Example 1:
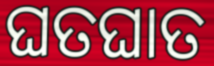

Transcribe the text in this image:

ଘତଘାତ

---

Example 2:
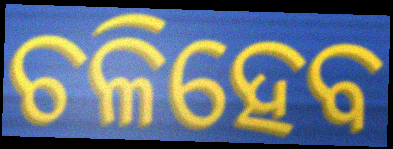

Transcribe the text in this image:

ଚଳିହେବ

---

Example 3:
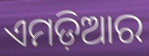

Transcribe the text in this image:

ଏମଡ଼ିଆର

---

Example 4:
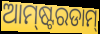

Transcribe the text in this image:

ଆମ୍‍ଷ୍ଟରଡାମ୍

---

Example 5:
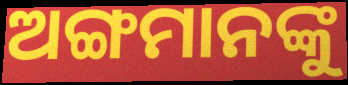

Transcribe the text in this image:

ଅଙ୍ଗମାନଙ୍କୁ